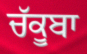
ਚੱਕੂਬਾ